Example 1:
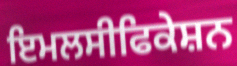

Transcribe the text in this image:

ਇਮਲਸੀਫਿਕੇਸ਼ਨ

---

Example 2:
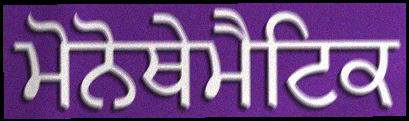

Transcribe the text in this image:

ਮੋਨੋਥੇਮੈਟਿਕ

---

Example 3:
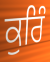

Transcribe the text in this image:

ਕੁਰਿੰ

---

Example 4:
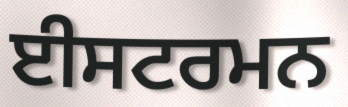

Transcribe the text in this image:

ਈਸਟਰਮਨ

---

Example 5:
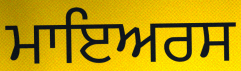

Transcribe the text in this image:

ਮਾਇਅਰਸ